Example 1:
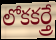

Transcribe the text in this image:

లోకకర్త్రే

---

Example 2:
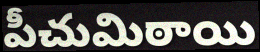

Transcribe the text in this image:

పీచుమిఠాయి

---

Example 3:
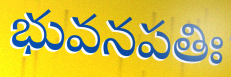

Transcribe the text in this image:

భువనపతిః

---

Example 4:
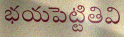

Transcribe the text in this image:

భయపెట్టితివి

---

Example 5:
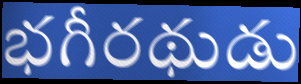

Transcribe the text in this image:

భగీరథుడు